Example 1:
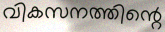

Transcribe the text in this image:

വികസനത്തിന്റെ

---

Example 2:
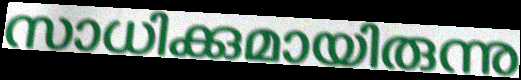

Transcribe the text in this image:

സാധിക്കുമായിരുന്നു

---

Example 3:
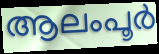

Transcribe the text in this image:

ആലംപൂർ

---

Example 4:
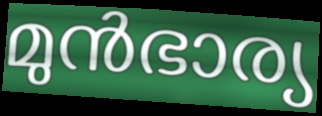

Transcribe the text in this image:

മുൻഭാര്യ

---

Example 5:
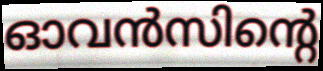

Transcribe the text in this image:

ഓവൻസിന്റെ